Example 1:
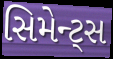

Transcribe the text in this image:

સિમેન્ટ્સ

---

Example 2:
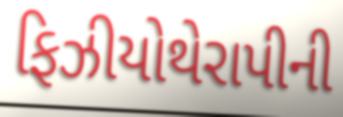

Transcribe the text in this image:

ફિઝીયોથેરાપીની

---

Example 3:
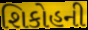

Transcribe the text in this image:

શિકોહની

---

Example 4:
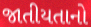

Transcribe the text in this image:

જાતીયતાનો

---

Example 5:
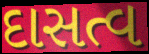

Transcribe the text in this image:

દાસત્વ